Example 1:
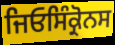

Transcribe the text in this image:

ਜਿਓਸਿੰਕ੍ਰੋਨਸ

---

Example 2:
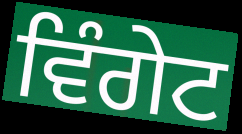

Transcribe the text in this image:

ਵਿੰਗੇਟ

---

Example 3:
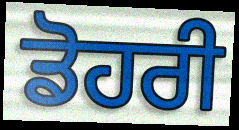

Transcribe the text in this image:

ਡੋਹਰੀ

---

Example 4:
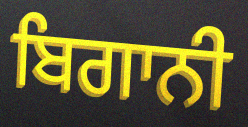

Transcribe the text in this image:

ਬਿਗਾਨੀ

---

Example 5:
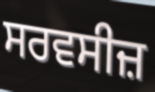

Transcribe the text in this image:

ਸਰਵਸੀਜ਼